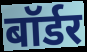
बॉर्डर